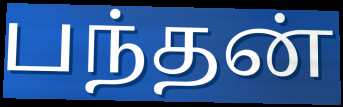
பந்தன்